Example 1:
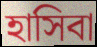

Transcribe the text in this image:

হাসিবা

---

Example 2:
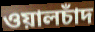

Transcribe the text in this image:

ওয়ালচাঁদ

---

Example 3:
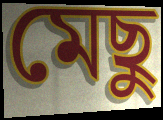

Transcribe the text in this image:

মেছু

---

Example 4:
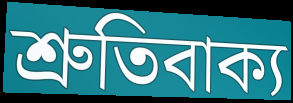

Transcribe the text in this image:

শ্রুতিবাক্য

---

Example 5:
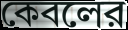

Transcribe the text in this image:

কেবলের